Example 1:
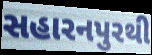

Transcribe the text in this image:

સહારનપુરથી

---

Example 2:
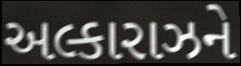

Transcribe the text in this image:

અલ્કારાઝને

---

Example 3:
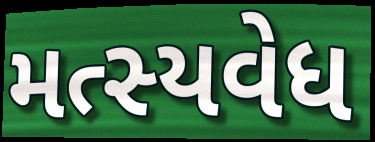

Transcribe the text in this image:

મત્સ્યવેધ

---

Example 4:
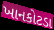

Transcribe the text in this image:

ખાનકોટડા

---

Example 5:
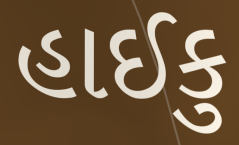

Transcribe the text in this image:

હાઈકુ